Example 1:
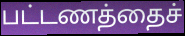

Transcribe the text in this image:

பட்டணத்தைச்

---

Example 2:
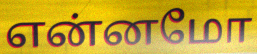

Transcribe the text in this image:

என்னமோ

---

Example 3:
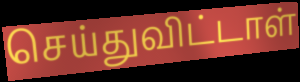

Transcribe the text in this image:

செய்துவிட்டாள்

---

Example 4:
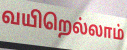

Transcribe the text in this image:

வயிறெல்லாம்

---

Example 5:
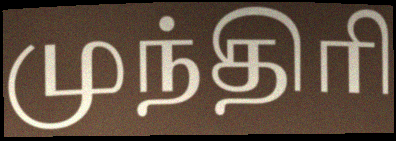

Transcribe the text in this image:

முந்திரி